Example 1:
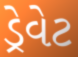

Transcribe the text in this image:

ડ્રેવેટ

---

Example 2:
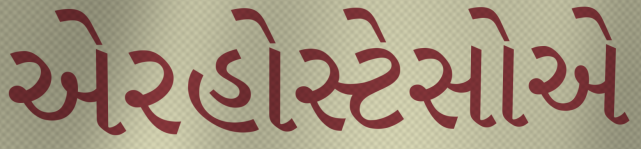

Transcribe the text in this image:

એરહોસ્ટેસોએ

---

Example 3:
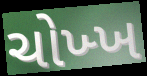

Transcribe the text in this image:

ચોખ્ખ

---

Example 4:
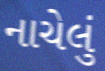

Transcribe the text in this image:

નાચેલું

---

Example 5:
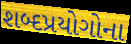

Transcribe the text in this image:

શબ્દપ્રયોગોના